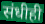
संधीही